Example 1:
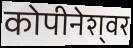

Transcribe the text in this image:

कोपीनेश्वर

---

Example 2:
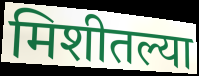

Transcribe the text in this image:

मिशीतल्या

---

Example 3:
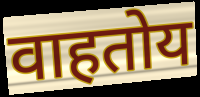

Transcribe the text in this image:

वाहतोय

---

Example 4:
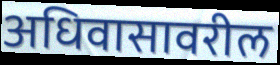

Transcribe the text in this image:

अधिवासावरील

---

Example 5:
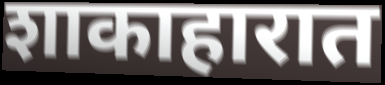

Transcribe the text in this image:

शाकाहारात